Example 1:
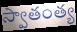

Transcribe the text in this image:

స్వాతంత్య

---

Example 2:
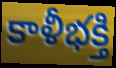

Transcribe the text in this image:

కాళీభక్తి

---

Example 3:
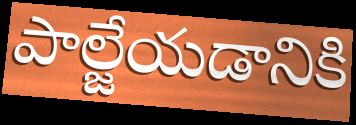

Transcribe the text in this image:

పాల్జేయడానికి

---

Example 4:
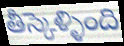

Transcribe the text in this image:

తీస్కెళ్ళింది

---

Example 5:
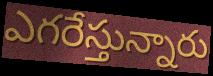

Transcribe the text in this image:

ఎగరేస్తున్నారు